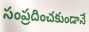
సంప్రదించకుండానే